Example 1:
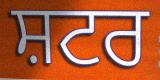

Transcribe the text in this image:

ਸ਼ਟਰ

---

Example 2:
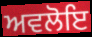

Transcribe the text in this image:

ਅਵਲੋਇ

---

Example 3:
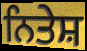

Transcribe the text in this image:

ਨਿਤੇਸ਼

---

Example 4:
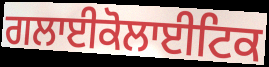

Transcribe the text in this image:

ਗਲਾਈਕੋਲਾਈਟਿਕ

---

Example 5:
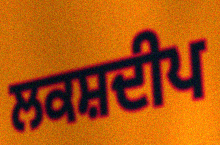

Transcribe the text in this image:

ਲਕਸ਼ਦੀਪ